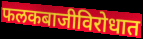
फलकबाजीविरोधात